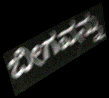
ಬೀಗವನ್ನು